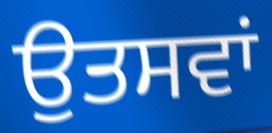
ਉਤਸਵਾਂ